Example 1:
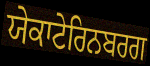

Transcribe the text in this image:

ਯੇਕਾਟੇਰਿਨਬਰਗ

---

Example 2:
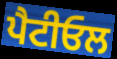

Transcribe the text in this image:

ਪੈਟੀਓਲ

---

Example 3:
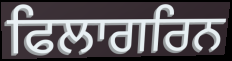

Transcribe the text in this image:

ਫਿਲਾਗਰਿਨ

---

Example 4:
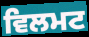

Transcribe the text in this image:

ਵਿਲਮਟ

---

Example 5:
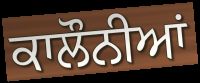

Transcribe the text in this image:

ਕਾਲੌਨੀਆਂ